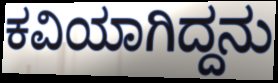
ಕವಿಯಾಗಿದ್ದನು